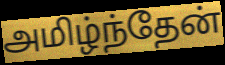
அமிழ்ந்தேன்